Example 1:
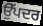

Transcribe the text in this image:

ਉੱਪਦਰ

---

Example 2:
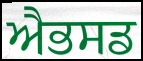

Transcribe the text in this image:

ਐਭਸਡ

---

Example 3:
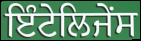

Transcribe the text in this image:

ਇੰਟੇਲਿਜੇਂਸ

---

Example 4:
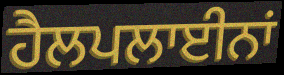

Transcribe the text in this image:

ਹੈਲਪਲਾਈਨਾਂ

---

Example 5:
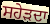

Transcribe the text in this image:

ਸਹੇੜਦਾ